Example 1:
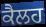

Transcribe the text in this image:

ਕੈਲਹ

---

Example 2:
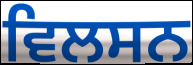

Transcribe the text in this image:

ਵਿਲਸਨ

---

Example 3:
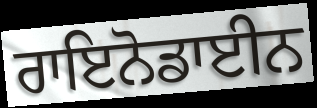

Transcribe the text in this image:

ਰਾਇਨੋਡਾਈਨ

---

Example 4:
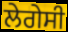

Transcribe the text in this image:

ਲੇਗੇਸੀ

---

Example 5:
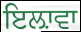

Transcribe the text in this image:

ਇਲ਼ਾਵਾ